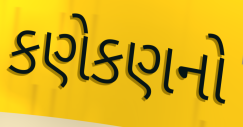
કણેકણનો